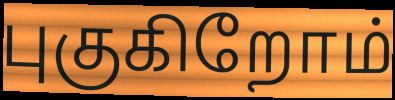
புகுகிறோம்